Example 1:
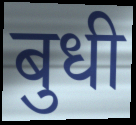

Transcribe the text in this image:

बुधी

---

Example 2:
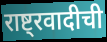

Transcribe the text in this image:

राष्ट्रवादीची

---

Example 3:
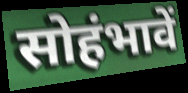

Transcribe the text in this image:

सोहंभावें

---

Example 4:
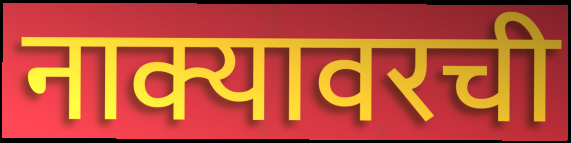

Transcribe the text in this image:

नाक्यावरची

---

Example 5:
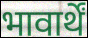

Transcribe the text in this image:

भावार्थें